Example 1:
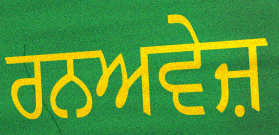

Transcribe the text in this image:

ਰਨਅਵੇਜ਼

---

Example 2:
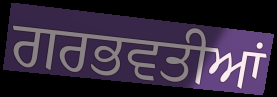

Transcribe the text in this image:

ਗਰਭਵਤੀਆਂ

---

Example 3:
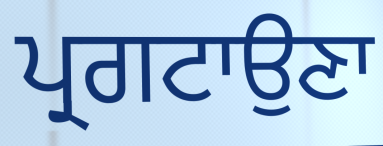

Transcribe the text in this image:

ਪ੍ਰਗਟਾਉਣਾ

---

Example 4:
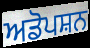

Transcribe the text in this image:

ਅਡੋਪਸ਼ਨ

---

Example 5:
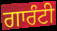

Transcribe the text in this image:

ਗਾਰੰਟੀ